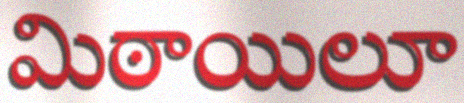
మిఠాయిలూ